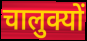
चालुक्यों